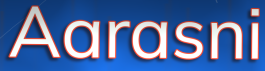
Aarasni